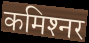
कमिश्‍नर